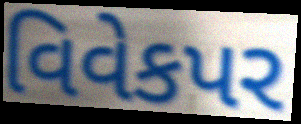
વિવેકપર